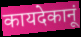
कायदेकानूं